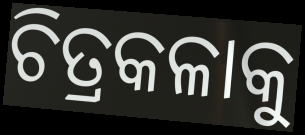
ଚିତ୍ରକଳାକୁ